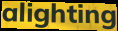
alighting